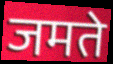
जमते